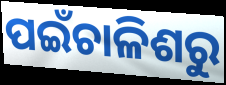
ପଇଁଚାଳିଶରୁ